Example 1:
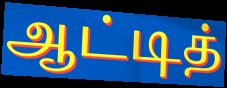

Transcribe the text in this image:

ஆட்டித்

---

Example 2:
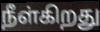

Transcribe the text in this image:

நீள்கிறது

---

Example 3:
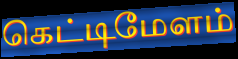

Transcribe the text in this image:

கெட்டிமேளம்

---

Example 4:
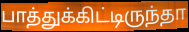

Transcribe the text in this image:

பாத்துக்கிட்டிருந்தா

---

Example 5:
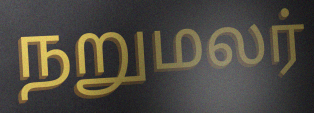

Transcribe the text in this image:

நறுமலர்